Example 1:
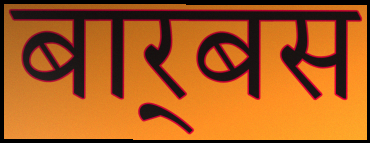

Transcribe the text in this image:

बार्बस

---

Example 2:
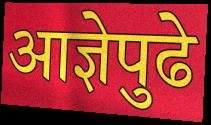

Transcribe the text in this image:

आज्ञेपुढे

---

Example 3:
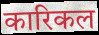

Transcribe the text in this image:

कारिकल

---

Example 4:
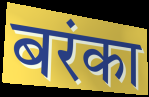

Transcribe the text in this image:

बरंका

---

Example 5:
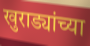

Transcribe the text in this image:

खुराड्यांच्या